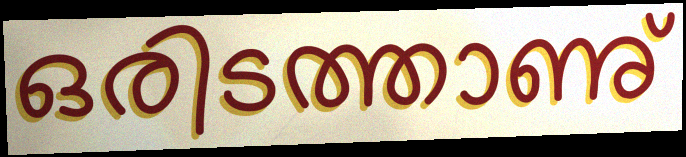
ഒരിടത്താണു്